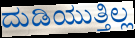
ದುಡಿಯುತ್ತಿಲ್ಲ